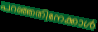
പറഞ്ഞതിനേക്കാൾ